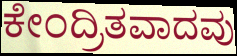
ಕೇಂದ್ರಿತವಾದವು